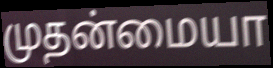
முதன்மையா